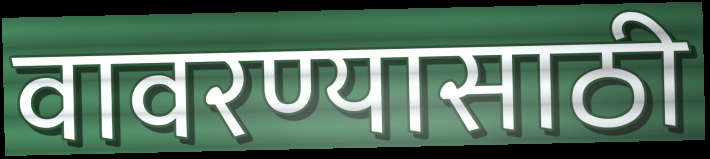
वावरण्यासाठी